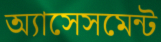
অ্যাসেসমেন্ট